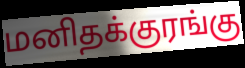
மனிதக்குரங்கு